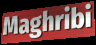
Maghribi